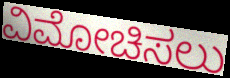
ವಿಮೋಚಿಸಲು